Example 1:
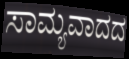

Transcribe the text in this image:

ಸಾಮ್ಯವಾದದ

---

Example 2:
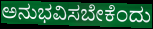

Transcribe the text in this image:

ಅನುಭವಿಸಬೇಕೆಂದು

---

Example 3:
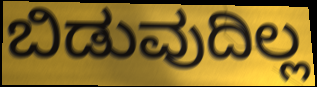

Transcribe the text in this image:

ಬಿಡುವುದಿಲ್ಲ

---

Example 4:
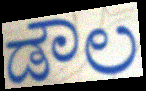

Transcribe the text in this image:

ಡೌಲ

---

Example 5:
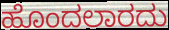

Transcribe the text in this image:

ಹೊಂದಲಾರದು